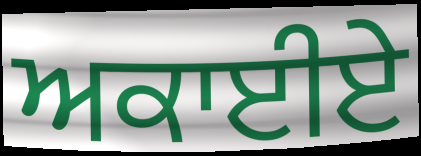
ਅਕਾਈਏ